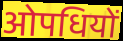
ओपधियों